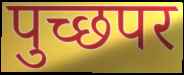
पुच्छपर